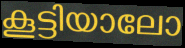
കൂട്ടിയാലോ